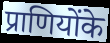
प्राणियोंके